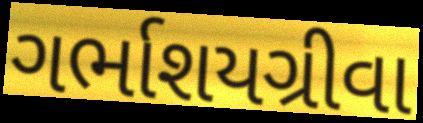
ગર્ભાશયગ્રીવા